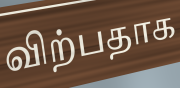
விற்பதாக